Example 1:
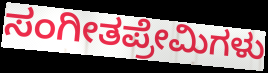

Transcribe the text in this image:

ಸಂಗೀತಪ್ರೇಮಿಗಳು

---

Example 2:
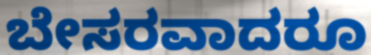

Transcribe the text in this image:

ಬೇಸರವಾದರೂ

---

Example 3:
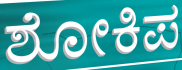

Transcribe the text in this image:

ಶೋಕಿಪ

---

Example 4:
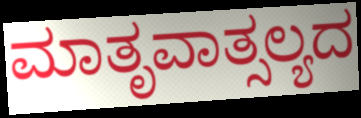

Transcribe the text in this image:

ಮಾತೃವಾತ್ಸಲ್ಯದ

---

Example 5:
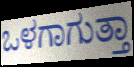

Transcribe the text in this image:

ಒಳಗಾಗುತ್ತಾ